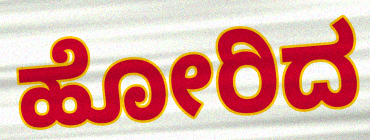
ಹೋರಿದ